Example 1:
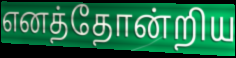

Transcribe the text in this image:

எனத்தோன்றிய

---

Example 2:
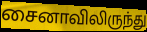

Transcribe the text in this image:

சைனாவிலிருந்து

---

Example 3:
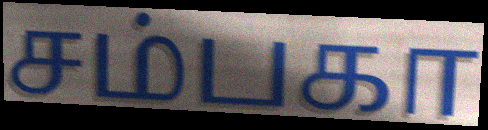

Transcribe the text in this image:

சம்பகா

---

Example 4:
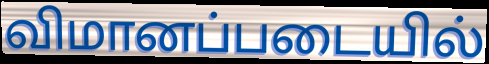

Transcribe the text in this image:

விமானப்படையில்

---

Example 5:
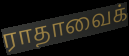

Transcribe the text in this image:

ராதாவைக்